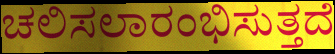
ಚಲಿಸಲಾರಂಭಿಸುತ್ತದೆ